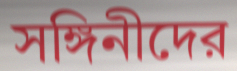
সঙ্গিনীদের